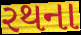
રથના